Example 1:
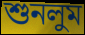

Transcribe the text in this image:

শুনলুম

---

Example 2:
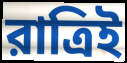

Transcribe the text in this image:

রাত্রিই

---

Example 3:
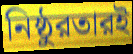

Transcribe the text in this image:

নিষ্ঠুরতারই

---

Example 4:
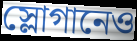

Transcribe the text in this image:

স্লোগানেও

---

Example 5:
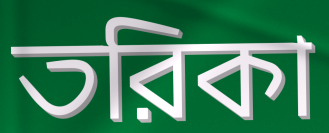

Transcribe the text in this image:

তরিকা